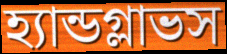
হ্যান্ডগ্লাভস